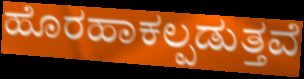
ಹೊರಹಾಕಲ್ಪಡುತ್ತವೆ